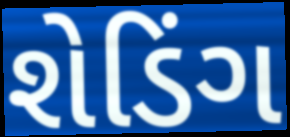
શેડિંગ